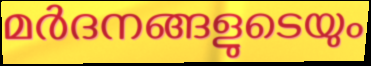
മർദനങ്ങളുടെയും